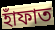
হাঁফাত